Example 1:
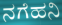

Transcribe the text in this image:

ನಗೆಹನಿ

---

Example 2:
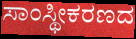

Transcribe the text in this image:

ಸಾಂಸ್ಥೀಕರಣದ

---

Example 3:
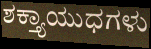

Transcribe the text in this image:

ಶಕ್ತ್ಯಾಯುಧಗಳು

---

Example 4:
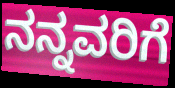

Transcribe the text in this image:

ನನ್ನವರಿಗೆ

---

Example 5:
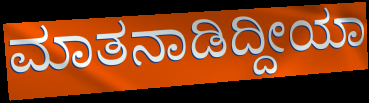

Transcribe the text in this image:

ಮಾತನಾಡಿದ್ದೀಯಾ